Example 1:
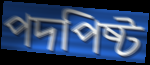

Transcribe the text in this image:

পদপিষ্ট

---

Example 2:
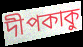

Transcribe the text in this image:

দীপকাকু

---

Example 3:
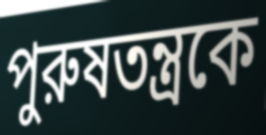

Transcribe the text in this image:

পুরুষতন্ত্রকে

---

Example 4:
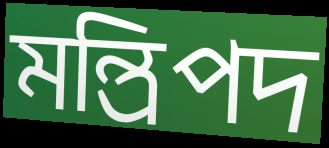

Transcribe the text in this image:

মন্ত্রিপদ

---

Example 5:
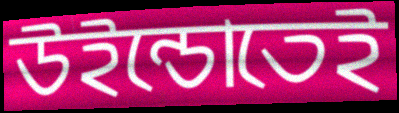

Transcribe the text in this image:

উইন্ডোতেই